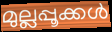
മുല്ലപ്പൂക്കൾ